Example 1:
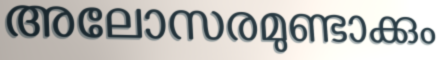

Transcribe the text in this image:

അലോസരമുണ്ടാക്കും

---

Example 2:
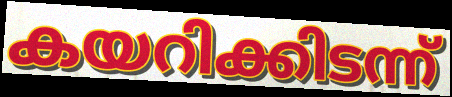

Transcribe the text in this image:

കയറിക്കിടന്ന്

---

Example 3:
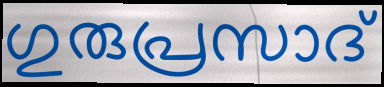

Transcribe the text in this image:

ഗുരുപ്രസാദ്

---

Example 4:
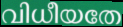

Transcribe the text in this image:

വിധീയതേ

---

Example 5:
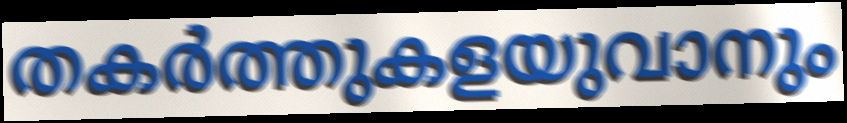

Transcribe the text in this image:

തകർത്തുകളയുവാനും